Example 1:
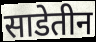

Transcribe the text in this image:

साडेतीन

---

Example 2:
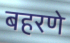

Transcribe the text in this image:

बहरणे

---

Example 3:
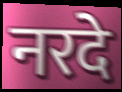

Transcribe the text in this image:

नरदे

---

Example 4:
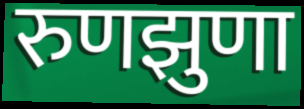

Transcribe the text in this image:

रुणझुणा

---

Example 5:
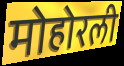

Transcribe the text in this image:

मोहोरली